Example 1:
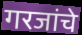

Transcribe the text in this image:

गरजांचे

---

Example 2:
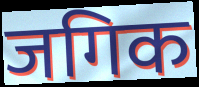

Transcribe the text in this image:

जगिक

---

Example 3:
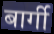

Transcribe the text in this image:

बार्गी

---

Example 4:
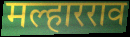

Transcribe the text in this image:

मल्हारराव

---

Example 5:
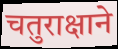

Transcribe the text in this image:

चतुराक्षाने